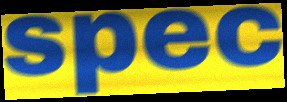
spec